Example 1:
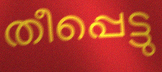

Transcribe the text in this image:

തീപ്പെട്ടു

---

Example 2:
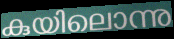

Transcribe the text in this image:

കുയിലൊന്നു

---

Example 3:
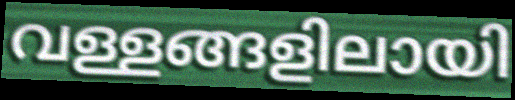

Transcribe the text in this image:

വള്ളങ്ങളിലായി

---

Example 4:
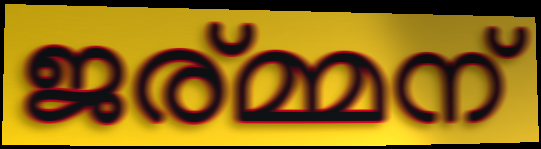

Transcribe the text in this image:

ജര്മ്മന്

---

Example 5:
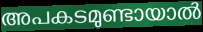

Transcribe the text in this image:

അപകടമുണ്ടായാൽ